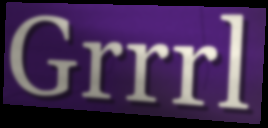
Grrrl